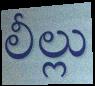
లీల్లు